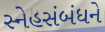
સ્નેહસંબંધને